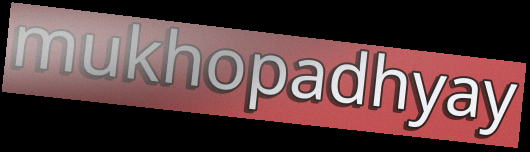
mukhopadhyay